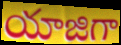
యాజిగా